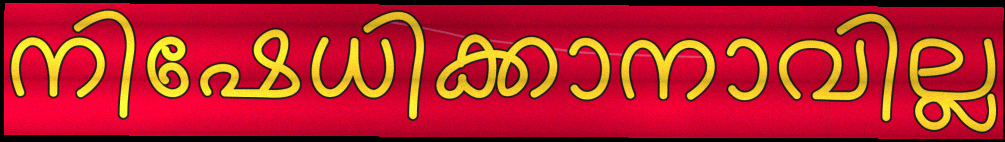
നിഷേധിക്കാനാവില്ല